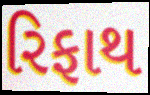
રિફાથ